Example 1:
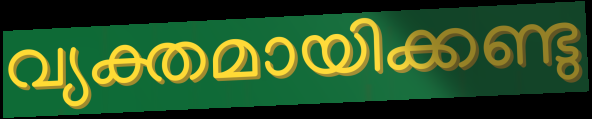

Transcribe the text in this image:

വ്യക്തമായിക്കണ്ടു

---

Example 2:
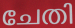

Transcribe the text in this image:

ചേതി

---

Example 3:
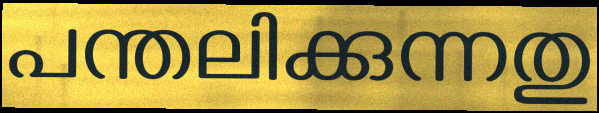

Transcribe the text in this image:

പന്തലിക്കുന്നതു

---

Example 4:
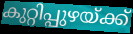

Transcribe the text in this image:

കുറ്റിപ്പുഴയ്ക്ക്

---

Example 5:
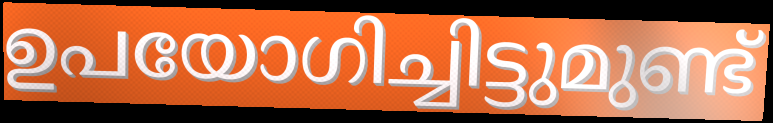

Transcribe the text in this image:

ഉപയോഗിച്ചിട്ടുമുണ്ട്